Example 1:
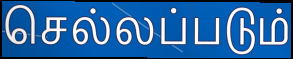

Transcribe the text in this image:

செல்லப்படும்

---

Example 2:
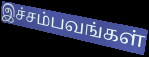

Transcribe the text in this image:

இச்சம்பவங்கள்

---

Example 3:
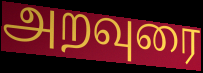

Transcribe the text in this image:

அறவுரை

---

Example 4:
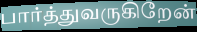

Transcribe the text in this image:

பார்த்துவருகிறேன்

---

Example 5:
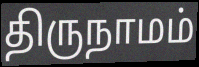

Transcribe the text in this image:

திருநாமம்